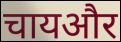
चायऔर